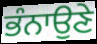
ਭੰਨਾਉਣੇ